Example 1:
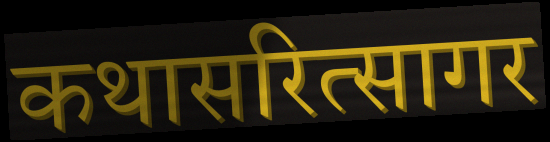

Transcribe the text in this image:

कथासरित्सागर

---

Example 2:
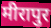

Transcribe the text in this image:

मीरापुर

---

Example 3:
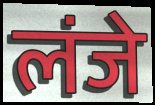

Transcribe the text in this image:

लंजे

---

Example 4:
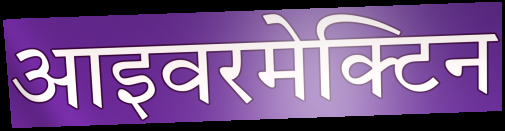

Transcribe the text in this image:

आइवरमेक्टिन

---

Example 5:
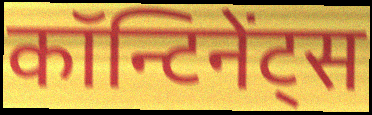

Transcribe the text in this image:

कॉन्टिनेंट्स